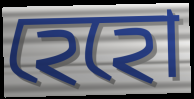
হেহো